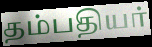
தம்பதியர்